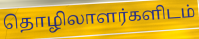
தொழிலாளர்களிடம்